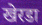
खेरडा